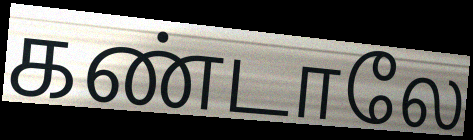
கண்டாலே